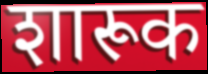
शारूक